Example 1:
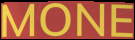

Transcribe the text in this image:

MONE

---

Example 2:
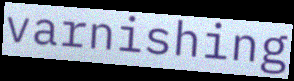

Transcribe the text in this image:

varnishing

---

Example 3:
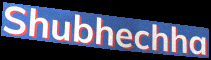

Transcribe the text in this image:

Shubhechha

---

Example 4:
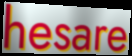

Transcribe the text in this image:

hesare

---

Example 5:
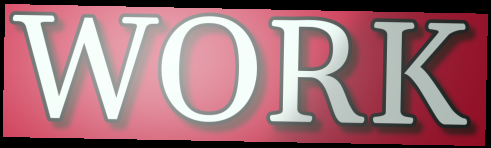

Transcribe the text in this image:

WORK